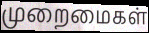
முறைமைகள்